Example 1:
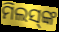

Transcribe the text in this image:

ମିଲସ୍‍ଙ୍କ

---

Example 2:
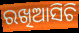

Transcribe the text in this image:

ରଖିଆସିଚି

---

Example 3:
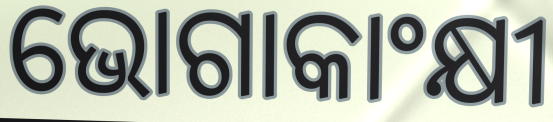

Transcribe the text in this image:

ଭୋଗାକାଂକ୍ଷୀ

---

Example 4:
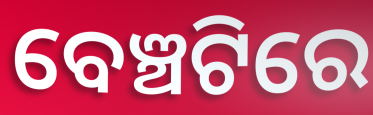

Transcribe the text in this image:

ବେଞ୍ଚଟିରେ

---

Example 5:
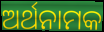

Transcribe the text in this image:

ଅର୍ଥନାମକ